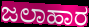
ಜಲಾಹಾರ